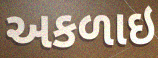
અકળાઇ